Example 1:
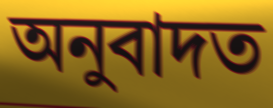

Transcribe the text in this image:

অনুবাদত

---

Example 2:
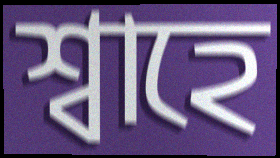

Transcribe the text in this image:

শ্বাহে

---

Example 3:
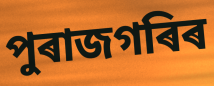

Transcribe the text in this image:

পুৰাজগৰিৰ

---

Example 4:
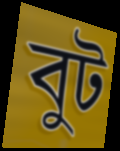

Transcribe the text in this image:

বুট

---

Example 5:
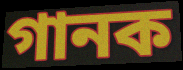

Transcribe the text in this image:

গানক